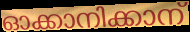
ഓക്കാനിക്കാന്